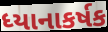
ધ્યાનાકર્ષક